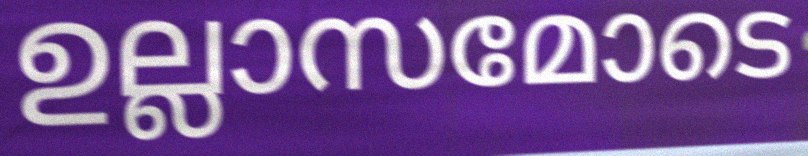
ഉല്ലാസമോടെ